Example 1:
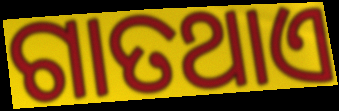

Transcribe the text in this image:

ଗାତଥାଏ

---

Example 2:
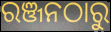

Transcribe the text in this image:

ରଞ୍ଜନଠାରୁ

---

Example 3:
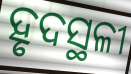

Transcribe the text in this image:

ହୃଦସ୍ଥଳୀ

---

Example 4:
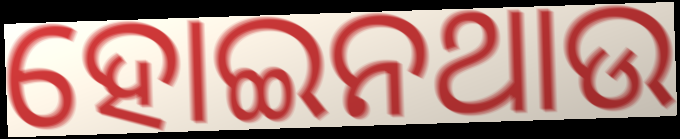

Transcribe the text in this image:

ହୋଇନଥାଉ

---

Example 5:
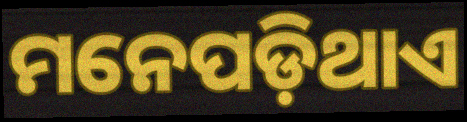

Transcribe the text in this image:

ମନେପଡ଼ିଥାଏ